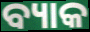
ବ୍ୟାକ